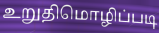
உறுதிமொழிப்படி